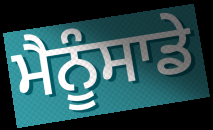
ਮੈਨੂੰਸਾਡੇ